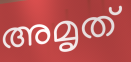
അമൃത്